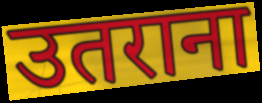
उतराना